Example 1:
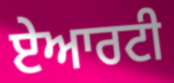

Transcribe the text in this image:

ਏਆਰਟੀ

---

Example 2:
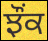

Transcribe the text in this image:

ਝੌਂਕ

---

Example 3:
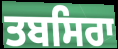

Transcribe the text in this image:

ਤਬਸਿਰਾ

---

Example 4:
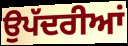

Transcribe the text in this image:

ਉਪੱਦਰੀਆਂ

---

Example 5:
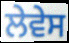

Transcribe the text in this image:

ਲੇਵੇਸ